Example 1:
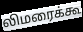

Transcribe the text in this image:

லிமரைக்கூ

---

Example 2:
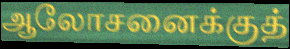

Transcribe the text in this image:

ஆலோசனைக்குத்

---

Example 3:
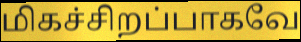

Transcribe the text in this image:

மிகச்சிறப்பாகவே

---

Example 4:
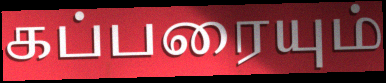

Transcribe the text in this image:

கப்பரையும்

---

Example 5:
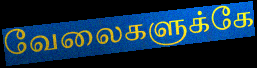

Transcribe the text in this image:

வேலைகளுக்கே